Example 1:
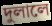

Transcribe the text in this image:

দুলালে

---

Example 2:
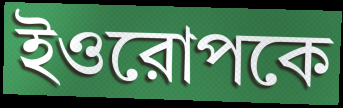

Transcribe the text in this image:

ইওরোপকে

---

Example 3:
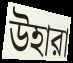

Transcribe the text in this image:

উহারা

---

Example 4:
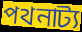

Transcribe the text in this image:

পথনাট্য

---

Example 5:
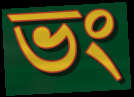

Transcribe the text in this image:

ভং